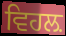
ਵਿਹਲ਼